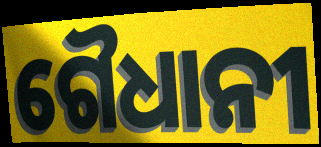
ଗୈଧାନୀ